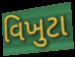
વિખુટા